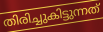
തിരിച്ചുകിട്ടുന്നത്